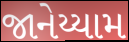
જાનેય્યામ